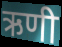
ऋणी